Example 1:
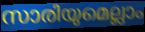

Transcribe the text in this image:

സാരിയുമെല്ലാം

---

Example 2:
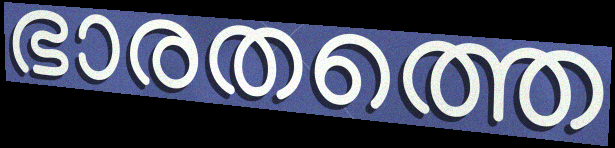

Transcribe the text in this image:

ഭാരതത്തെ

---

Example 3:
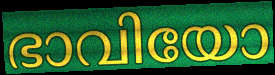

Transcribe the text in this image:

ഭാവിയോ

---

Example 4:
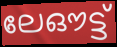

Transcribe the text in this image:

ലേഔട്ട്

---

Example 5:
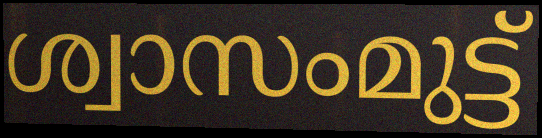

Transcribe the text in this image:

ശ്വാസംമുട്ട്